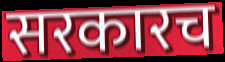
सरकारच